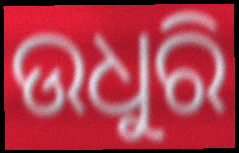
ଉଧୁରି